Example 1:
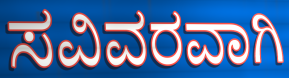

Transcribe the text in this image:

ಸವಿವರವಾಗಿ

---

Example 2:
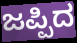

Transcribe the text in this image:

ಜಪ್ಪಿದ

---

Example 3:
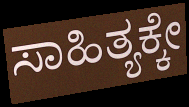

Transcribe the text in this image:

ಸಾಹಿತ್ಯಕ್ಕೇ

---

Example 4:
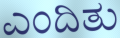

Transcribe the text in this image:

ಎಂದಿತು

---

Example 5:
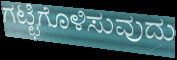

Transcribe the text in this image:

ಗಟ್ಟಿಗೊಳಿಸುವುದು